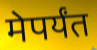
मेपर्यंत